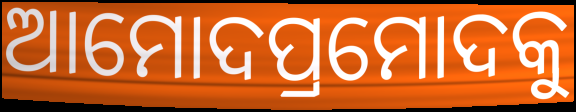
ଆମୋଦପ୍ରମୋଦକୁ